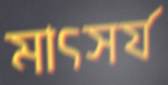
মাৎসর্য